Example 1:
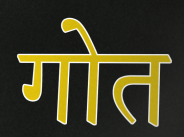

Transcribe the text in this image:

गोत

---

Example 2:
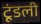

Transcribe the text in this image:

टूंडली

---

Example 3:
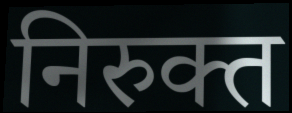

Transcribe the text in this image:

निरुक्त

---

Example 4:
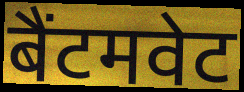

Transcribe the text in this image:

बैंटमवेट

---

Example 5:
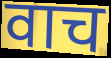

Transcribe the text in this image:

वाच